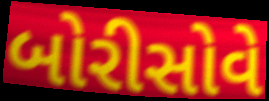
બોરીસોવે